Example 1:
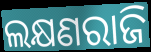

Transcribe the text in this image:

ଲକ୍ଷଣରାଜି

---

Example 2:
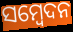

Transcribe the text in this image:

ସମ୍ଵେଦନ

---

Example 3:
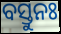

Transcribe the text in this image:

ବସ୍ତୁନଃ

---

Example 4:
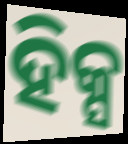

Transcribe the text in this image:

ହିକ୍ସ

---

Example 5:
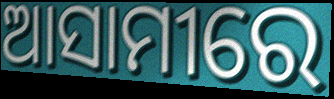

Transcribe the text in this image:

ଆସାମୀରେ